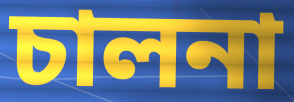
চালনা